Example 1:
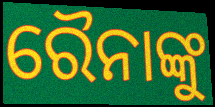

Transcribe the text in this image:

ରୈନାଙ୍କୁ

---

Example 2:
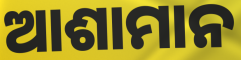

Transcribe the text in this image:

ଆଶାମାନ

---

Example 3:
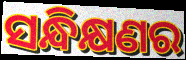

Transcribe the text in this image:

ସନ୍ଧିକ୍ଷଣର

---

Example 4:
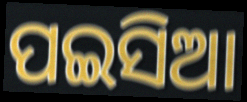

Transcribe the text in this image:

ପଇସିଆ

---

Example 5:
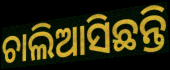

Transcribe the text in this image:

ଚାଲିଆସିଛନ୍ତି